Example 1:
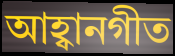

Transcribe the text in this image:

আহ্বানগীত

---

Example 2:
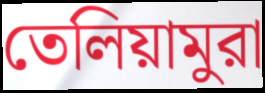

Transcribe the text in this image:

তেলিয়ামুরা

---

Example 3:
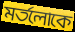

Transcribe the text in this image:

মর্তলোকে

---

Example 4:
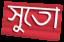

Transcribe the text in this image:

সুতো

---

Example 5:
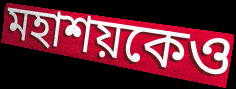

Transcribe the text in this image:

মহাশয়কেও